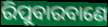
ରିପୁବାରବାଣେ